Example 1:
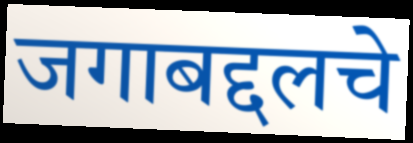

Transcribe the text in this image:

जगाबद्दलचे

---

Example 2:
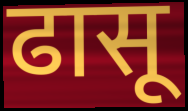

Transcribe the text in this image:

ढासू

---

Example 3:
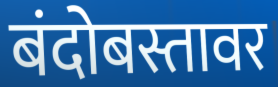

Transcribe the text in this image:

बंदोबस्तावर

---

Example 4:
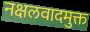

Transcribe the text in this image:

नक्षलवादमुक्त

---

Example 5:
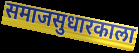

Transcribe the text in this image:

समाजसुधारकाला